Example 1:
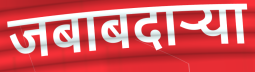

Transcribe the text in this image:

जबाबदार्‍या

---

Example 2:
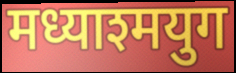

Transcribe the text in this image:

मध्याश्मयुग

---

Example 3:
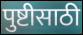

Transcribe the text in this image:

पुष्टीसाठी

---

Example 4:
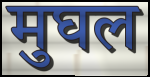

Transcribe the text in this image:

मुघल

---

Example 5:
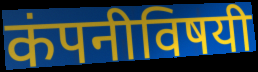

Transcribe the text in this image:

कंपनीविषयी